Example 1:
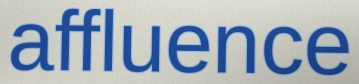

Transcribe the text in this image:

affluence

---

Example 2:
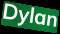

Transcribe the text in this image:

Dylan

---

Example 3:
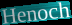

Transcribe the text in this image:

Henoch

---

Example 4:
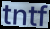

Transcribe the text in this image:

tntf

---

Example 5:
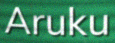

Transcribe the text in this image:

Aruku